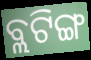
ବ୍ଲଟିଙ୍ଗ